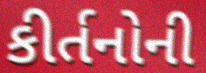
કીર્તનોની